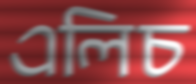
এলিচ